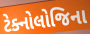
ટેક્નોલોજિના